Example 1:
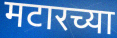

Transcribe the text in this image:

मटारच्या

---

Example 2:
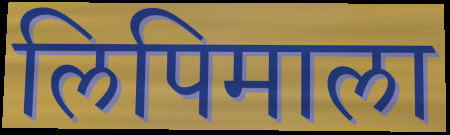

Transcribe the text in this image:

लिपिमाला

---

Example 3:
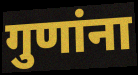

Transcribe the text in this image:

गुणांना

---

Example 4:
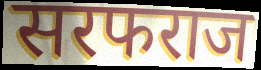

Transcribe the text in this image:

सरफराज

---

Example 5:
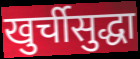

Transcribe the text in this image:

खुर्चीसुद्धा